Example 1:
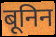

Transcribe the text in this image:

बूनिन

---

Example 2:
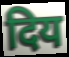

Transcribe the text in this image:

दिय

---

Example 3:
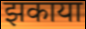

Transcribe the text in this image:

झकाया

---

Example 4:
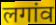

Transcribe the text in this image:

लगांव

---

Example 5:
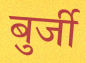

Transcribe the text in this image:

बुर्जी